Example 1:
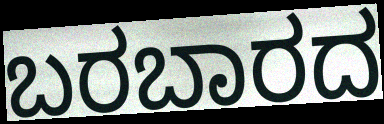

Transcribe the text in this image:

ಬರಬಾರದ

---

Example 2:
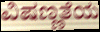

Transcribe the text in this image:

ವಿಷಣ್ಣತೆಯ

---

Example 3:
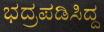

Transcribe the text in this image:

ಭದ್ರಪಡಿಸಿದ್ದ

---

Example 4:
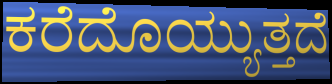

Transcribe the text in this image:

ಕರೆದೊಯ್ಯುತ್ತದೆ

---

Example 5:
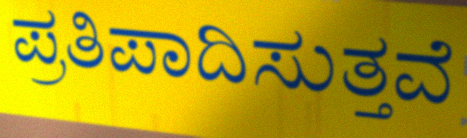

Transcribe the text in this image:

ಪ್ರತಿಪಾದಿಸುತ್ತವೆ